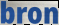
bron